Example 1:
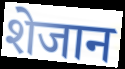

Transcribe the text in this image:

शेजान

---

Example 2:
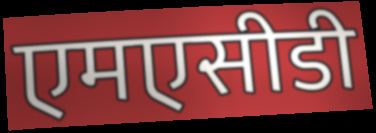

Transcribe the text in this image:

एमएसीडी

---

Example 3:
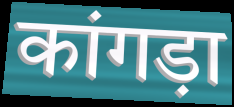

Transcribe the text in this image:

कांगड़ा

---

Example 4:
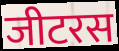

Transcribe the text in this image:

जीटरस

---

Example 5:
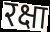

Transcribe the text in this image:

रक्षा